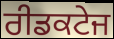
ਰੀਡਕਟੇਜ